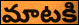
మాటకి